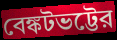
বেঙ্কটভট্টের